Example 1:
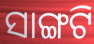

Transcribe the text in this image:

ସାଙ୍ଗଟି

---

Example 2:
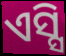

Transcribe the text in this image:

ଏସ୍ସି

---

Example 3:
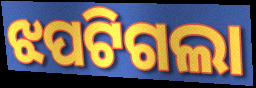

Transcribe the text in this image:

ଝପଟିଗଲା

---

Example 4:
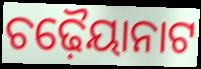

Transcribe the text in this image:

ଚଢ଼ୈୟାନାଟ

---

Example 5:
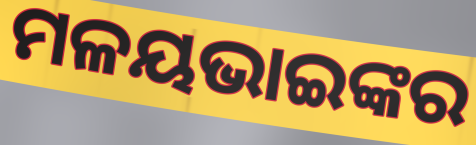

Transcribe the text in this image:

ମଳୟଭାଇଙ୍କର